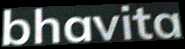
bhavita